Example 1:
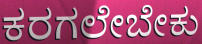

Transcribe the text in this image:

ಕರಗಲೇಬೇಕು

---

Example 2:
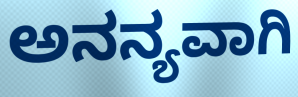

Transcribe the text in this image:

ಅನನ್ಯವಾಗಿ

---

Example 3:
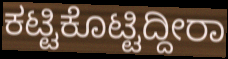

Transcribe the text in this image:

ಕಟ್ಟಿಕೊಟ್ಟಿದ್ದೀರಾ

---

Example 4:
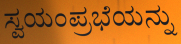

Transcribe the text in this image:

ಸ್ವಯಂಪ್ರಭೆಯನ್ನು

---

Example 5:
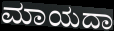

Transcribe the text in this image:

ಮಾಯದಾ